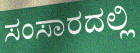
ಸಂಸಾರದಲ್ಲಿ